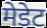
मेडेट